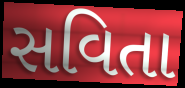
સવિતા